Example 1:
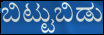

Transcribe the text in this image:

ಬಿಟ್ಟುಬಿಡು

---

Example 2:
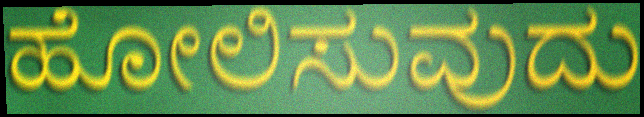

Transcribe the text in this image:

ಹೋಲಿಸುವುದು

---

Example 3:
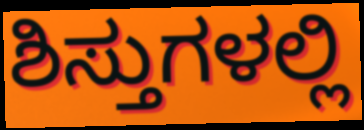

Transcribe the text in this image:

ಶಿಸ್ತುಗಳಲ್ಲಿ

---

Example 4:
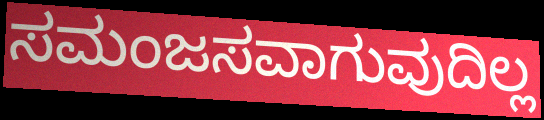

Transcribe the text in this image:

ಸಮಂಜಸವಾಗುವುದಿಲ್ಲ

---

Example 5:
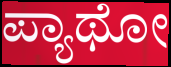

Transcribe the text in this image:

ಪ್ಯಾಥೋ